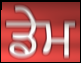
ਡੇਮ